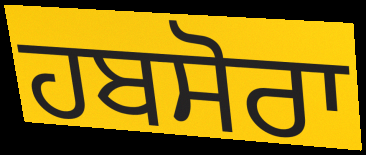
ਹਬਸੋਰਾ